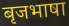
बृजभाषा